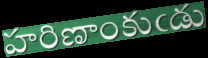
హరిణాంకుఁడు